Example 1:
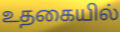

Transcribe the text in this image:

உதகையில்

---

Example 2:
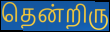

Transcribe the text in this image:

தென்றிரு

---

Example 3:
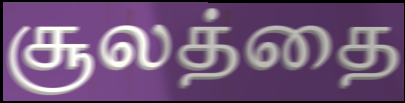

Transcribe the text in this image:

சூலத்தை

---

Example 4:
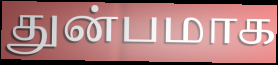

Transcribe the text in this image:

துன்பமாக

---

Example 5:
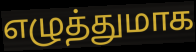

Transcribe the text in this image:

எழுத்துமாக